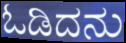
ಓಡಿದನು